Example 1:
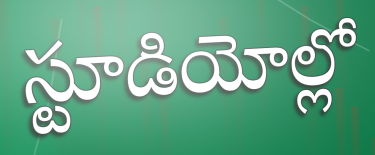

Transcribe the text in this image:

స్టూడియోల్లో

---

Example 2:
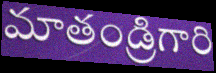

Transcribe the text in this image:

మాతండ్రిగారి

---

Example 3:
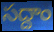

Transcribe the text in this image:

సద్దాం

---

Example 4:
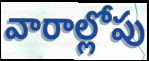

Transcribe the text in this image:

వారాల్లోపు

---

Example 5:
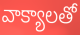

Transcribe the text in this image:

వాక్యాలతో